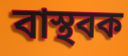
বাস্থবক